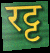
रट्ट